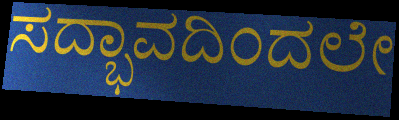
ಸದ್ಭಾವದಿಂದಲೇ